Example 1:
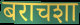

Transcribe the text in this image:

बराचशा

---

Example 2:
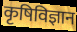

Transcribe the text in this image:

कृषिविज्ञान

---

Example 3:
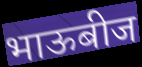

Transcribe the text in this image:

भाऊबीज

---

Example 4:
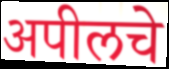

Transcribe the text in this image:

अपीलचे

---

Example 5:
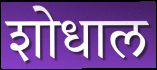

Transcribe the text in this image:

शोधाल